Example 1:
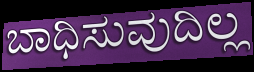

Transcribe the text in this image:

ಬಾಧಿಸುವುದಿಲ್ಲ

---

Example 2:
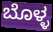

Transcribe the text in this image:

ಬೊಳ್ಳ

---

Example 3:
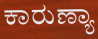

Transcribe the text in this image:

ಕಾರುಣ್ಯಾ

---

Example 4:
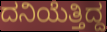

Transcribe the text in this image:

ದನಿಯೆತ್ತಿದ್ದ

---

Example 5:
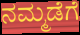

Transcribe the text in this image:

ನಮ್ಮಡೆಗೆ